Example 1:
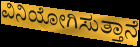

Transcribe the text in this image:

ವಿನಿಯೋಗಿಸುತ್ತಾನೆ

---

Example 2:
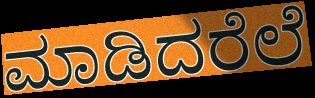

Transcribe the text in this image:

ಮಾಡಿದರೆಲೆ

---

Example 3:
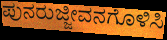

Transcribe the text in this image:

ಪುನರುಜ್ಜೀವನಗೊಳಿಸಿ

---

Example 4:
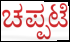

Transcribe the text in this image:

ಚಪ್ಪಟೆ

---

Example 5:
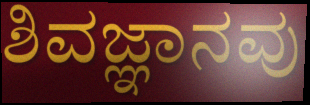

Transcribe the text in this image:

ಶಿವಜ್ಞಾನವು